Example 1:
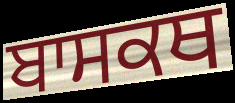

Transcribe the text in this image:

ਬਾਸਕਥ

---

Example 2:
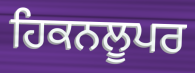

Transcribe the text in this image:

ਹਿਕਨਲੂਪਰ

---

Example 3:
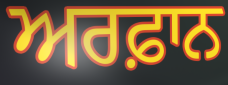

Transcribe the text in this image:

ਅਰਫ਼ਾਨ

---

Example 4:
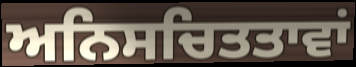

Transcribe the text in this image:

ਅਨਿਸਚਿਤਤਾਵਾਂ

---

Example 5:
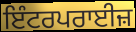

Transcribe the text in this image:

ਇੰਟਰਪਰਾਈਜ਼